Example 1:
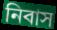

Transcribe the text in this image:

নিবাস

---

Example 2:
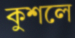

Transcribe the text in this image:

কুশলে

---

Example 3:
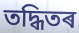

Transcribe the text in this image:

তদ্ধিতৰ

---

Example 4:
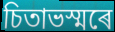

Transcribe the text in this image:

চিতাভস্মৰে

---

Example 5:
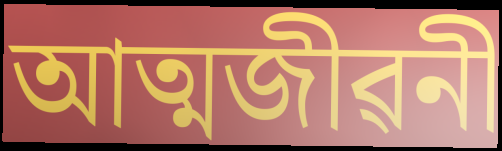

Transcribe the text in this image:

আত্মজীৱনী